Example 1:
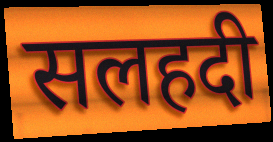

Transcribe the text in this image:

सलहदी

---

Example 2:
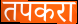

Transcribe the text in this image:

तपकरा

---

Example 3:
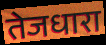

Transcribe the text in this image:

तेजधारा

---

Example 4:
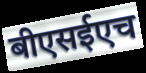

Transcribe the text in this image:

बीएसईएच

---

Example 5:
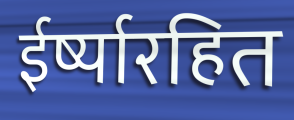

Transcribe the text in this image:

ईर्ष्यारहित